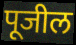
पूजील